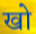
खो